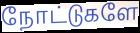
நோட்டுகளே